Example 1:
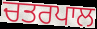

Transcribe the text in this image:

ਚਤਰਪਾਲ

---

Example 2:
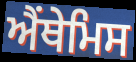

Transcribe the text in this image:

ਐਂਥੇਮਿਸ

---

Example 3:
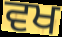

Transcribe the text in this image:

ਵਖ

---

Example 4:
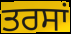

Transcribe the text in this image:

ਤਰਸਾਂ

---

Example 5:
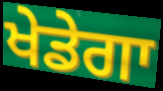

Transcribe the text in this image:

ਖੇਡੇਗਾ